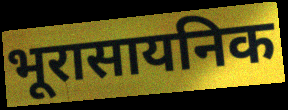
भूरासायनिक